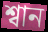
শ্বান